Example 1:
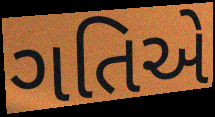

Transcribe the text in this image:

ગતિએ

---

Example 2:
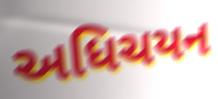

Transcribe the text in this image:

અધિચયન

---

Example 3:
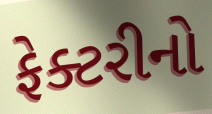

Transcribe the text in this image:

ફેક્ટરીનો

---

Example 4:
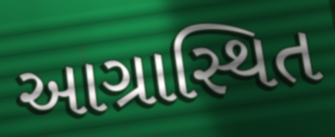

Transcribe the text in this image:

આગ્રાસ્થિત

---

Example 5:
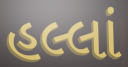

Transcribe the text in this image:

હલ્લાં